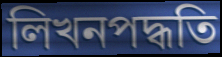
লিখনপদ্ধতি